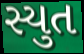
સ્યુત